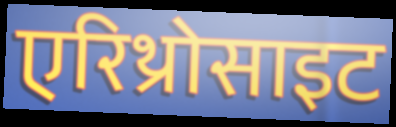
एरिथ्रोसाइट